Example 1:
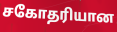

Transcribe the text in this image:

சகோதரியான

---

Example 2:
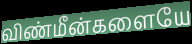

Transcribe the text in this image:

விண்மீன்களையே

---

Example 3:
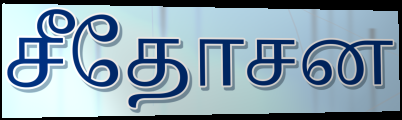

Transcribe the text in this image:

சீதோசன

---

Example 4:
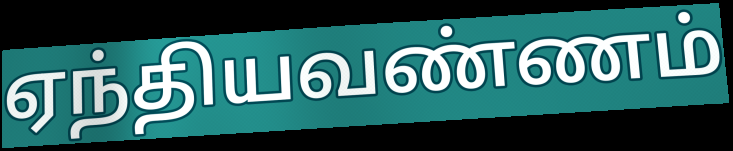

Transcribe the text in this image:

ஏந்தியவண்ணம்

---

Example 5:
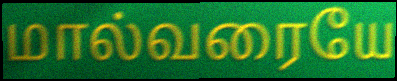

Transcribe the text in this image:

மால்வரையே